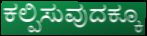
ಕಲ್ಪಿಸುವುದಕ್ಕೂ